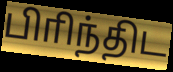
பிரிந்திட